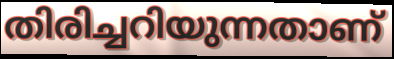
തിരിച്ചറിയുന്നതാണ്